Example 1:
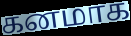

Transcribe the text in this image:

கனமாக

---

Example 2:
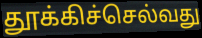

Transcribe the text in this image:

தூக்கிச்செல்வது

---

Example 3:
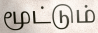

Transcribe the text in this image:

மூட்டும்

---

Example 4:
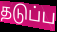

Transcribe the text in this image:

தடுப்ப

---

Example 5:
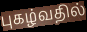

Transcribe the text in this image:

புகழ்வதில்